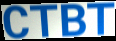
CTBT